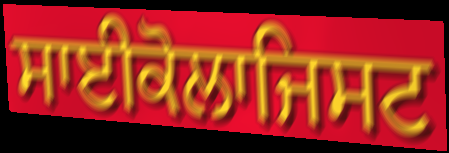
ਸਾਈਕੋਲਾਜਿਸਟ